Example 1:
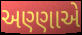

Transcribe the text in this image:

અણ્ણાએ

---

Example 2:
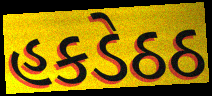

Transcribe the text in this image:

હકડેઠઠ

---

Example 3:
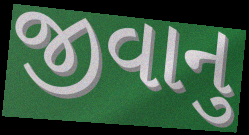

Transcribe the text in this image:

જીવાનુ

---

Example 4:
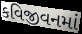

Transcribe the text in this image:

કવિજીવનમાં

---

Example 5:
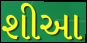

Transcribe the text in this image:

શીઆ